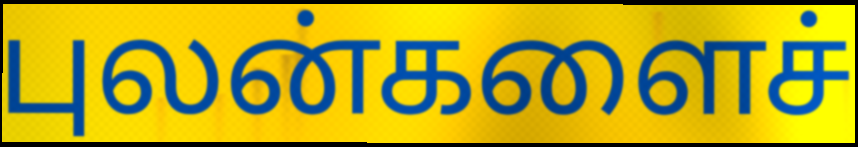
புலன்களைச்